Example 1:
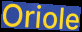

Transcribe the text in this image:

Oriole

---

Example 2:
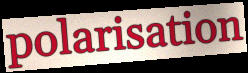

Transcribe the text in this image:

polarisation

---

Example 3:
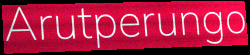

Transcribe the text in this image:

Arutperungo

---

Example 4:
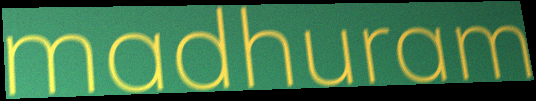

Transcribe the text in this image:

madhuram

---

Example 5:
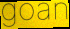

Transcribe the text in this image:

goan